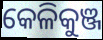
କେଳିକୁଞ୍ଜ